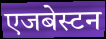
एजबेस्‍टन